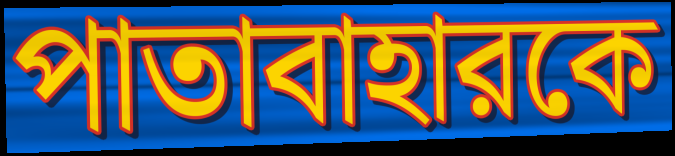
পাতাবাহারকে